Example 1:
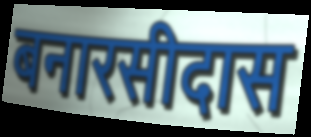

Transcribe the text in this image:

बनारसीदास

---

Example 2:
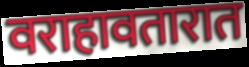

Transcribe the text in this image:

वराहावतारात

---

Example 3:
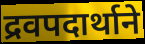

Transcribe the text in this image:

द्रवपदार्थाने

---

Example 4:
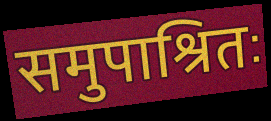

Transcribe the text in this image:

समुपाश्रितः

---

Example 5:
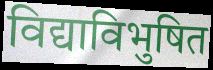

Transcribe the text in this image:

विद्याविभुषित